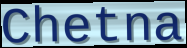
Chetna